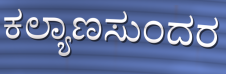
ಕಲ್ಯಾಣಸುಂದರ